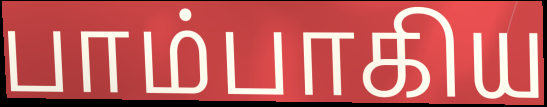
பாம்பாகிய